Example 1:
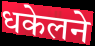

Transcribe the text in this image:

धकेलने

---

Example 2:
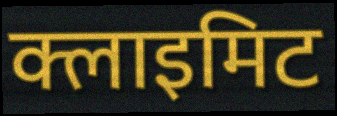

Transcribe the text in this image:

क्लाइमिट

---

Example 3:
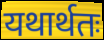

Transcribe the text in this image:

यथार्थतः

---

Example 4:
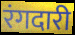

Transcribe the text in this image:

रंगदारी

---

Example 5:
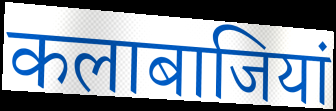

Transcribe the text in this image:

कलाबाजियां